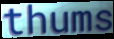
thums